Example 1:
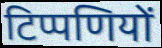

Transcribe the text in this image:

टिप्पणियों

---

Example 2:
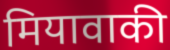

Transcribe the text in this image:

मियावाकी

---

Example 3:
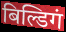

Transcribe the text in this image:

बिल्डिगं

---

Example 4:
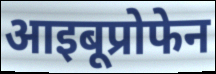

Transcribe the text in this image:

आइबूप्रोफेन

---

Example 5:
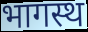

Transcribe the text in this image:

भागस्थ